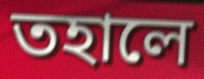
তহালে